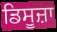
ਡਿਸੂਜ਼ਾ